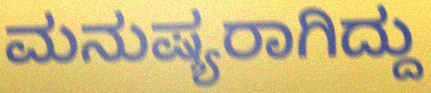
ಮನುಷ್ಯರಾಗಿದ್ದು